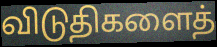
விடுதிகளைத்